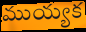
ముయ్యక